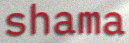
shama